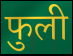
फुली